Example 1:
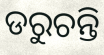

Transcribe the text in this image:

ଡରୁଚନ୍ତି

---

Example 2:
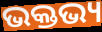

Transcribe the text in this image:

ଭକ୍ତଭ୍ୟ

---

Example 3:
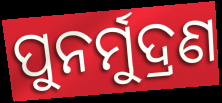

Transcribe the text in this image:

ପୁନର୍ମୁଦ୍ରଣ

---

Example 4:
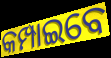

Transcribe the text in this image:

କମ୍ପାଇବେ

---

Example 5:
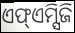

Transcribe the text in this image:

ଏଫ୍ଏମ୍ସିଜି